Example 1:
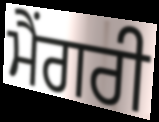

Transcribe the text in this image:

ਮੈਂਗਰੀ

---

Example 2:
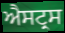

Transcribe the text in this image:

ਐਸਟ੍ਰਸ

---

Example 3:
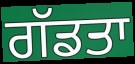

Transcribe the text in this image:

ਗੱਡਤਾ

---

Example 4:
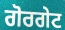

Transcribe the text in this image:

ਗੋਰਗੇਟ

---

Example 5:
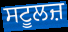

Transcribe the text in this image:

ਸਟੂਲਜ਼